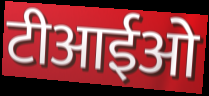
टीआईओ